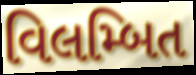
વિલમ્બિત